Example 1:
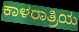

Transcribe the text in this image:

ಕಾಳರಾತ್ರಿಯ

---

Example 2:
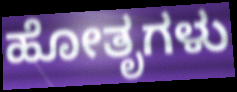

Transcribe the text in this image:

ಹೋತೃಗಳು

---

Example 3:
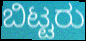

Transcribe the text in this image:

ಬಿಟ್ಟರು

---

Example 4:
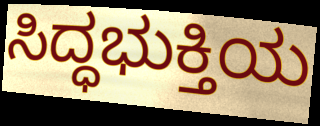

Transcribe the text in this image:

ಸಿದ್ಧಭುಕ್ತಿಯ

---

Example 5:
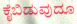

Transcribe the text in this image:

ಕೈಬಿಡುವುದೂ